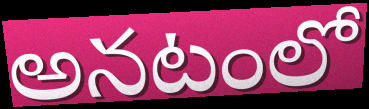
అనటంలో